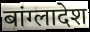
बांग्‍लादेश